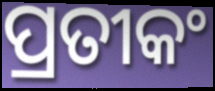
ପ୍ରତୀକଂ